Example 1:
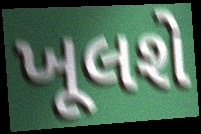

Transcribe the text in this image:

ખૂલશે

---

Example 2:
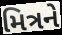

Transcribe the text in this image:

મિત્રને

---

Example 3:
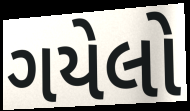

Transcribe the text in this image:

ગયેલો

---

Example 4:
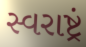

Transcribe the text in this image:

સ્વરાષ્ટ્રં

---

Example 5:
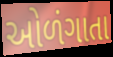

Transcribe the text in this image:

ઓળંગાતા